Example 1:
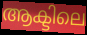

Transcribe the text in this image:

ആക്ടിലെ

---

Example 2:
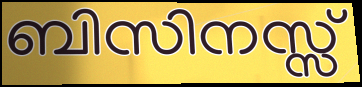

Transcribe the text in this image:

ബിസിനസ്സ്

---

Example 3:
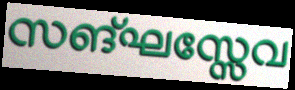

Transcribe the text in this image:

സങ്ഘസ്സേവ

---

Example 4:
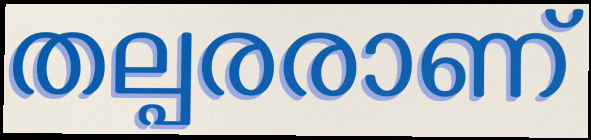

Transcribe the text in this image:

തല്പരരാണ്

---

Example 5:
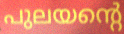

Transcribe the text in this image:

പുലയന്റെ